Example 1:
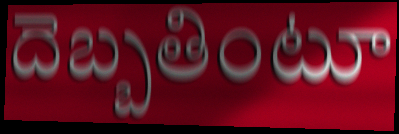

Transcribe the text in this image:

దెబ్బతింటూ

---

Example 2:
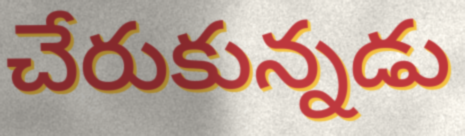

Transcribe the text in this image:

చేరుకున్నడు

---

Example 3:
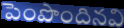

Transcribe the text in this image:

పెంపొందినవి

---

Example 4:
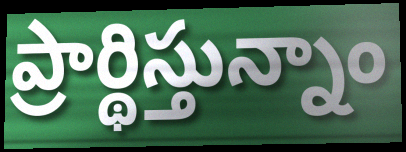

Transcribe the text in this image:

ప్రార్థిస్తున్నాం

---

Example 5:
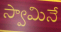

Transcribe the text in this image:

స్వామినే